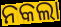
ନକଲା